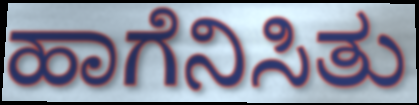
ಹಾಗೆನಿಸಿತು